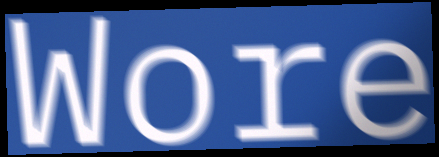
Wore